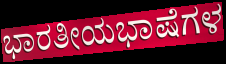
ಭಾರತೀಯಭಾಷೆಗಳ